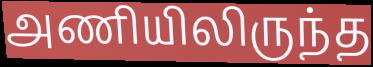
அணியிலிருந்த